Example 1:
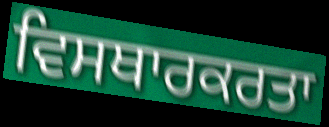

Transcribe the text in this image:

ਵਿਸਥਾਰਕਰਤਾ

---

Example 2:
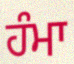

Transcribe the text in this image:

ਹੰਮਾ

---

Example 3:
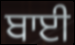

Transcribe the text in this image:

ਬਾਈ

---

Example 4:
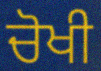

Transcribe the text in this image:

ਚੋਖੀ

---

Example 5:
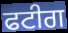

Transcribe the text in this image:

ਫਟੀਗ